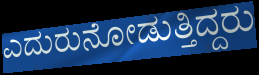
ಎದುರುನೋಡುತ್ತಿದ್ದರು